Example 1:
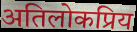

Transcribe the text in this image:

अतिलोकप्रिय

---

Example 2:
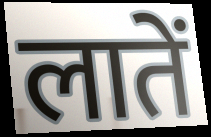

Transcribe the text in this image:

लातें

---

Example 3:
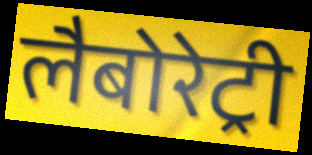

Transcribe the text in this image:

लैबोरेट्री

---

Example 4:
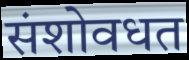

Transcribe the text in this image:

संशोवधत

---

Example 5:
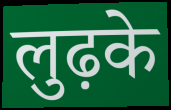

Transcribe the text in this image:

लुढ़के